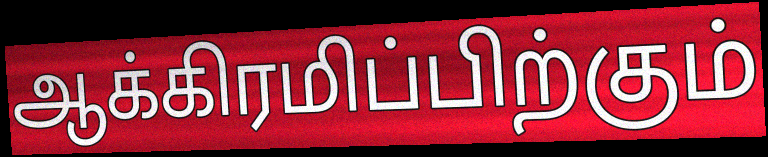
ஆக்கிரமிப்பிற்கும்